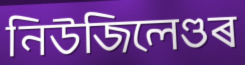
নিউজিলেণ্ডৰ